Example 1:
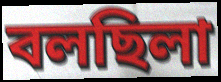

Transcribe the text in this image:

বলছিলা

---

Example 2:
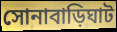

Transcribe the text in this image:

সোনাবাড়িঘাট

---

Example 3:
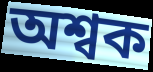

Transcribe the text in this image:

অশ্বক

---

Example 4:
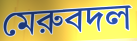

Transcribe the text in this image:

মেরুবদল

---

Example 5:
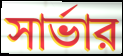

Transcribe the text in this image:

সার্ভার